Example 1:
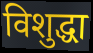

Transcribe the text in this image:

विशुद्धा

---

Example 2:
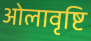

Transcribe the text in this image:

ओलावृष्टि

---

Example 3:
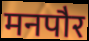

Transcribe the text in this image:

मनपौर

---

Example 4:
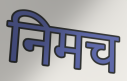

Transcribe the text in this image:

निमच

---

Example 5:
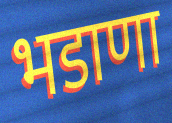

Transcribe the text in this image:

भडाणा